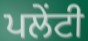
ਪਲੇਂਟੀ